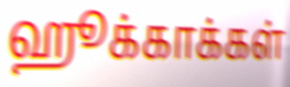
ஹூக்காக்கள்